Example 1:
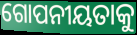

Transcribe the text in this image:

ଗୋପନୀୟତାକୁ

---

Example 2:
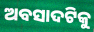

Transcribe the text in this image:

ଅବସାଦଟିକୁ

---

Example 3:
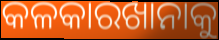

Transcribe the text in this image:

କଳକାରଖାନାକୁ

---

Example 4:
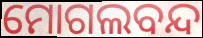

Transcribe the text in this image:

ମୋଗଲବନ୍ଦ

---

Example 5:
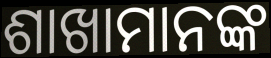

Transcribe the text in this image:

ଶାଖାମାନଙ୍କ